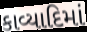
કાવ્યાદિમાં